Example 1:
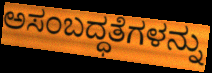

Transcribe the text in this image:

ಅಸಂಬದ್ಧತೆಗಳನ್ನು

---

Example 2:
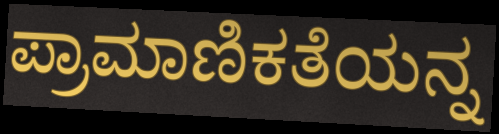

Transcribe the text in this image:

ಪ್ರಾಮಾಣಿಕತೆಯನ್ನ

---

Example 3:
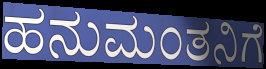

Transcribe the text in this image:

ಹನುಮಂತನಿಗೆ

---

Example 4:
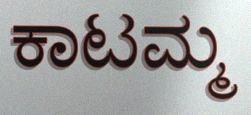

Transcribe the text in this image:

ಕಾಟಮ್ಮ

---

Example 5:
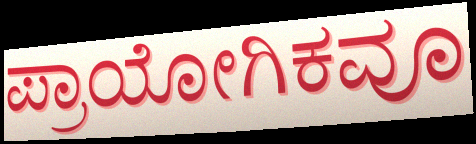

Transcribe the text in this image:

ಪ್ರಾಯೋಗಿಕವೂ